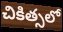
చికిత్సలో